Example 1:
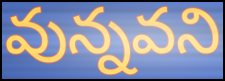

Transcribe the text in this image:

వున్నవని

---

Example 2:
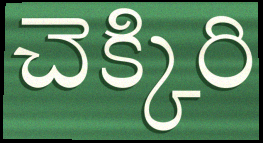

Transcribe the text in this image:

చెక్కిరి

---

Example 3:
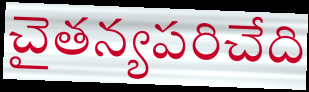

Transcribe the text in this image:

చైతన్యపరిచేది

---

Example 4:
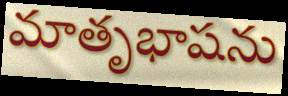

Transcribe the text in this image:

మాతృభాషను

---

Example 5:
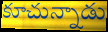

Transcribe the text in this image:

కూచున్నాడు